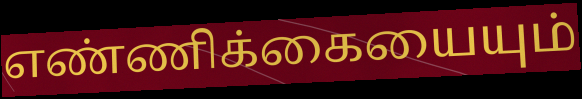
எண்ணிக்கையையும்